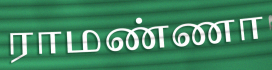
ராமண்ணா